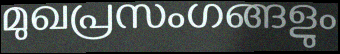
മുഖപ്രസംഗങ്ങളും